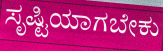
ಸೃಷ್ಟಿಯಾಗಬೇಕು